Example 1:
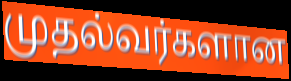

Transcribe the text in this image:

முதல்வர்களான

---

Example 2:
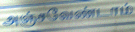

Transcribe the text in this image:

அஞ்சவேண்டாம்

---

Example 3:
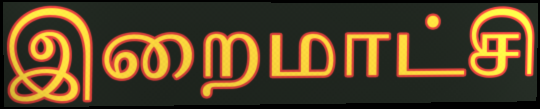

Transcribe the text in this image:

இறைமாட்சி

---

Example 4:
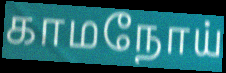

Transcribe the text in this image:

காமநோய்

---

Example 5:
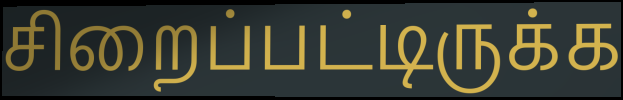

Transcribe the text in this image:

சிறைப்பட்டிருக்க